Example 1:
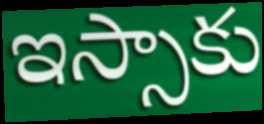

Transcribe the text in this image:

ఇస్సాకు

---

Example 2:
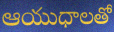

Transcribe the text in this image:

ఆయుధాలతో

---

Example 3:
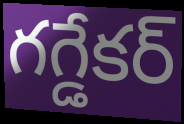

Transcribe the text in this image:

గగ్డేకర్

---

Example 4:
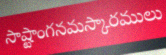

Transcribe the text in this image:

సాష్టాంగనమస్కారములు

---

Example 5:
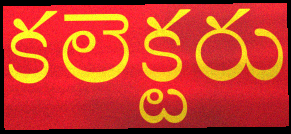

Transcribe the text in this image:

కలెక్టరు